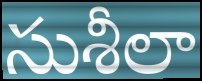
సుశీలా